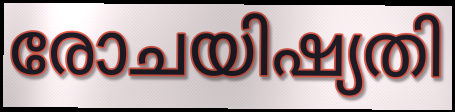
രോചയിഷ്യതി